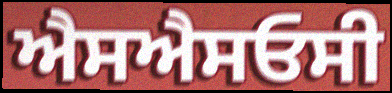
ਐਸਐਸਓਸੀ